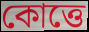
কোত্তে